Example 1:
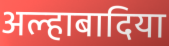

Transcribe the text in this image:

अल्हाबादिया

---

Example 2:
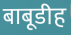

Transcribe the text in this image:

बाबूडीह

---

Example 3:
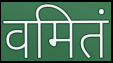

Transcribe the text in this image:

वमितं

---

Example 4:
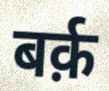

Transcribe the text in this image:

बर्क़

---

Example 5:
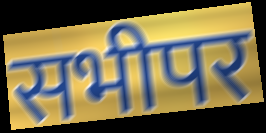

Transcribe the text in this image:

सभीपर